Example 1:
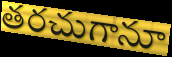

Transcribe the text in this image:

తరచుగానూ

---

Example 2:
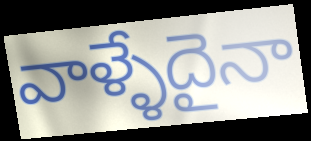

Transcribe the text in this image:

వాళ్ళేదైనా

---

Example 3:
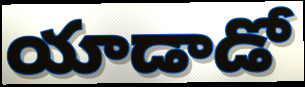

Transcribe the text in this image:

యాడాడో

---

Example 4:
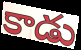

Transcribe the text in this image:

కాడు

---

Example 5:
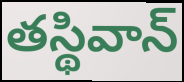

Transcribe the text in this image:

తస్థివాన్